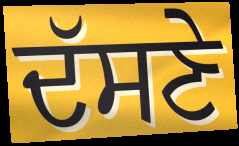
ਦੱਸਣੇ